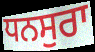
ਧਨਸੁਰਾ